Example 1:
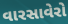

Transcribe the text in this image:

વારસાવેરો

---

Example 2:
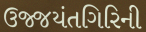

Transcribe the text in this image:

ઉજ્જયંતગિરિની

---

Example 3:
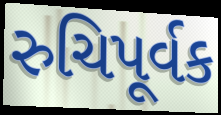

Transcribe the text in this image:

રુચિપૂર્વક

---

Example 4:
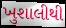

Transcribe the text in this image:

ખુશાલીથી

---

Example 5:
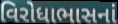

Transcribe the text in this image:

વિરોધાભાસનાં